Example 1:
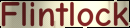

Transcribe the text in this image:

Flintlock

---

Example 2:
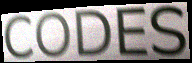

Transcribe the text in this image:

CODES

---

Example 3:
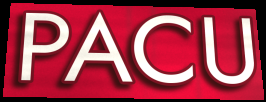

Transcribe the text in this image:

PACU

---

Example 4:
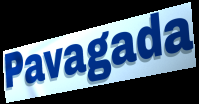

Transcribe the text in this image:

Pavagada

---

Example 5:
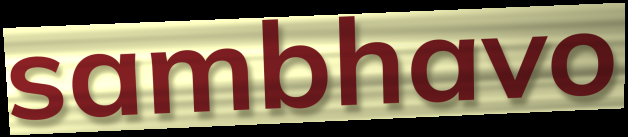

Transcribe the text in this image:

sambhavo